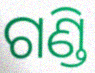
ଗଣ୍ଡି